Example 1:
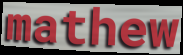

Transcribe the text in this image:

mathew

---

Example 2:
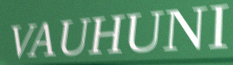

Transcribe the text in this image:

VAUHUNI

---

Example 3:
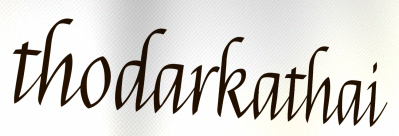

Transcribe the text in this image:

thodarkathai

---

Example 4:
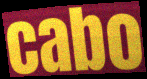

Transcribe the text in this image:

cabo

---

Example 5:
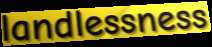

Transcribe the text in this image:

landlessness